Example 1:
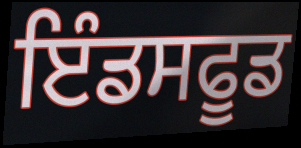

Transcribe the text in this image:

ਇੰਡਸਫੂਡ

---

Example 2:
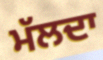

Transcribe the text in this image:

ਮੱਲਦਾ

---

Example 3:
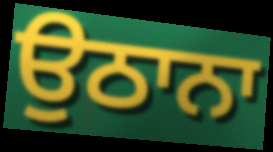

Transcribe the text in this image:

ਉਠਾਨਾ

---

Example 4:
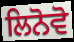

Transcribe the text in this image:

ਲਿਨੋਵੋ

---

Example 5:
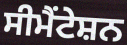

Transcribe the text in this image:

ਸੀਮੈਂਟੇਸ਼ਨ